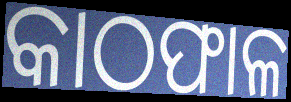
କାଠଫାଳ